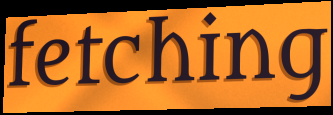
fetching